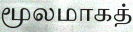
மூலமாகத்